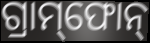
ଗ୍ରାମ୍‌ଫୋନ୍